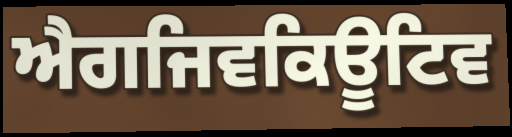
ਐਗਜਿਵਕਿਊਟਿਵ